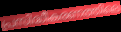
പ്രസിദ്ധീകരണത്തിലെ